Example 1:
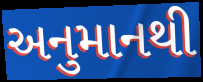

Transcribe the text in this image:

અનુમાનથી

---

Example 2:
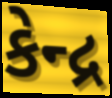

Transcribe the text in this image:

કેન્દ્ર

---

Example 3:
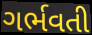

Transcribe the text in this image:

ગર્ભવતી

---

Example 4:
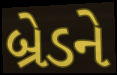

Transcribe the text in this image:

બ્રેડને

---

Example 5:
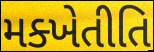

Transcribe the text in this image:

મક્ખેતીતિ